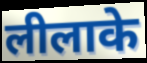
लीलाके